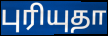
புரியுதா